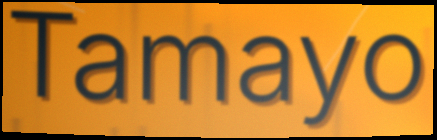
Tamayo